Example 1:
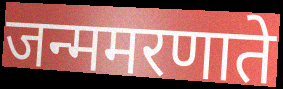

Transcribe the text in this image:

जन्ममरणाते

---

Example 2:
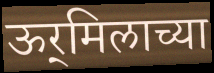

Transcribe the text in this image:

ऊर्मिलाच्या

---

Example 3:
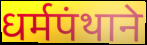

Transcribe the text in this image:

धर्मपंथाने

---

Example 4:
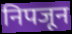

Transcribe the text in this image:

निपजून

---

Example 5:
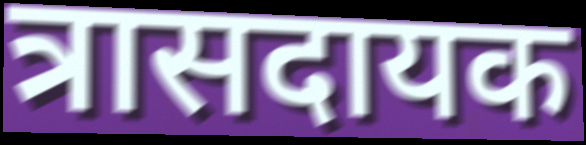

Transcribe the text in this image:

त्रासदायक